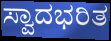
ಸ್ವಾದಭರಿತ